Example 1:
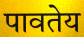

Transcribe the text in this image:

पावतेय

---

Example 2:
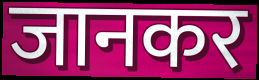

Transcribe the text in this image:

जानकर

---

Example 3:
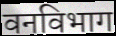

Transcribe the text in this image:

वनविभाग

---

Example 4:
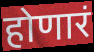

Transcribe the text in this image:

होणारं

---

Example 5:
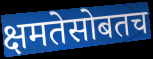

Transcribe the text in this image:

क्षमतेसोबतच